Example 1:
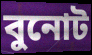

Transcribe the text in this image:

বুনোট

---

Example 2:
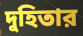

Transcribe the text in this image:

দুহিতার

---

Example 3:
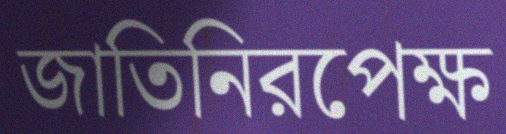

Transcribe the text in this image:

জাতিনিরপেক্ষ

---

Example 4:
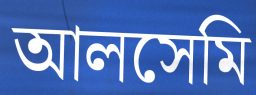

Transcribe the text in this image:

আলসেমি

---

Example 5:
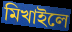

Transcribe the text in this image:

মিখাইলে